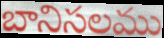
బానిసలము